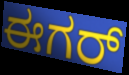
ಈಗರ್